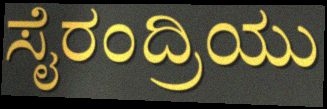
ಸೈರಂದ್ರಿಯು